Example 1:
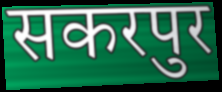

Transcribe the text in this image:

सकरपुर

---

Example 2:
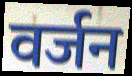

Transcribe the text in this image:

वर्जन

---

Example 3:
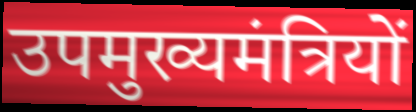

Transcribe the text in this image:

उपमुख्यमंत्रियों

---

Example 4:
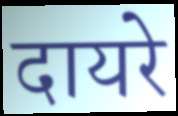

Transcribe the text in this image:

दायरे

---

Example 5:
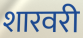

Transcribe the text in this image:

शारवरी